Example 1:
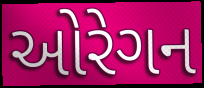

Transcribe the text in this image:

ઓરેગન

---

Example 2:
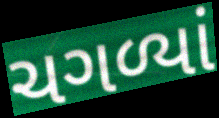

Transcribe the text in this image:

ચગળ્યાં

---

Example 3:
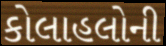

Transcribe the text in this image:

કોલાહલોની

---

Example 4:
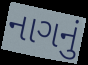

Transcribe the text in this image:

નાગનું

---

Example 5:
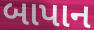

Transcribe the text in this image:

બાપાન